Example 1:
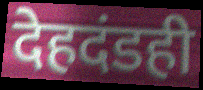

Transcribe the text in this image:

देहदंडही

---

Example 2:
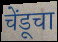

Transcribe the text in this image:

चेंडूचा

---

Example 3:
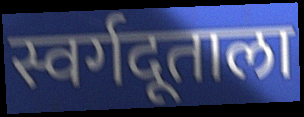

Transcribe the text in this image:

स्वर्गदूताला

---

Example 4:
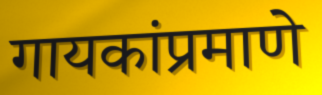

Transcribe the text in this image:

गायकांप्रमाणे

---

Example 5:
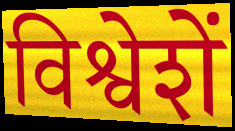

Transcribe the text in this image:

विश्वेशें